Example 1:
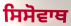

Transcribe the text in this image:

ਸਿਸੋਵਾਥ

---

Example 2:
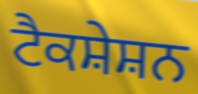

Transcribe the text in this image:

ਟੈਕਸ਼ੇਸ਼ਨ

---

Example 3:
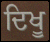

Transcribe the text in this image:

ਦਿਖੂ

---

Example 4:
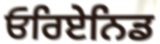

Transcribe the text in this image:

ਓਰਿਏਨਿਡ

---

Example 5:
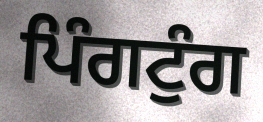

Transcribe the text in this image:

ਪਿੰਗਟੁੰਗ